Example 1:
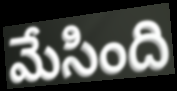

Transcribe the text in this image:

మేసింది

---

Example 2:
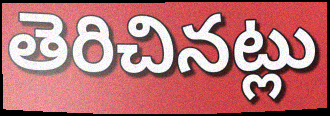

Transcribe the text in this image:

తెరిచినట్లు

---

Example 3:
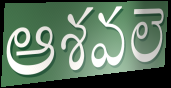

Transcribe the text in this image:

ఆశవలె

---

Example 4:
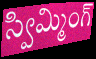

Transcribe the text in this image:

స్విమ్మింగ్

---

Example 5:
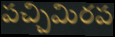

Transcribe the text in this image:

పచ్చిమిరప